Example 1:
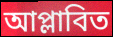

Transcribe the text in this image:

আপ্লাবিত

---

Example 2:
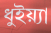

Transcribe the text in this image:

ধুইয়্যা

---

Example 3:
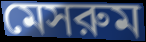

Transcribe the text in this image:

মেসরুম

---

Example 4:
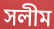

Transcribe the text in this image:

সলীম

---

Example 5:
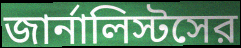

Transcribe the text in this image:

জার্নালিস্টসের